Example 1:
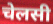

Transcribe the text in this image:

चेलसी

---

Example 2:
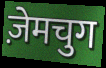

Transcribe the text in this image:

ज़ेमचुग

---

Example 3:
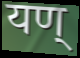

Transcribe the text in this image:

यण्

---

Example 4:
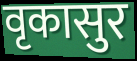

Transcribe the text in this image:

वृकासुर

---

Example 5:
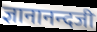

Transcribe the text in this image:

ज्ञानानन्दजी